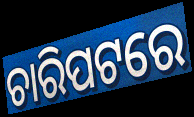
ଚାରିପଟରେ